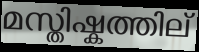
മസ്തിഷ്കത്തില്